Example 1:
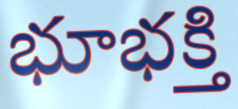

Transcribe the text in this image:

భూభక్తి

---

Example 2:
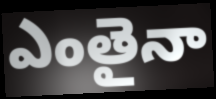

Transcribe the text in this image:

ఎంతైనా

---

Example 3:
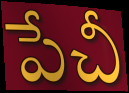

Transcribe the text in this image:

పేచీ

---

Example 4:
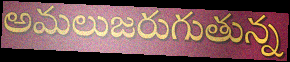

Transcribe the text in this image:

అమలుజరుగుతున్న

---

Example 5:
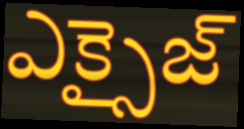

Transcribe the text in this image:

ఎక్సైజ్